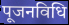
पूजनविधि